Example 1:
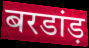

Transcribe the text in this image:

बरडांड़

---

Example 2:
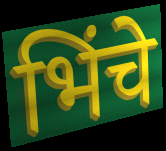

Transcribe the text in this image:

भिंचे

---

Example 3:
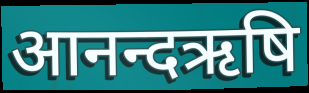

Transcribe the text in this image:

आनन्दऋषि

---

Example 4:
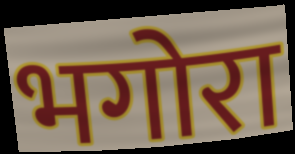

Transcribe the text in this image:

भगोरा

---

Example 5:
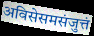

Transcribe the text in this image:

अविसेसमसंजुत्तं